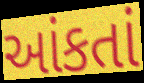
આંકતાં